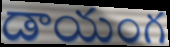
డాయంగ